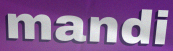
mandi